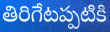
తిరిగేటప్పటికి